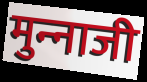
मुन्नाजी